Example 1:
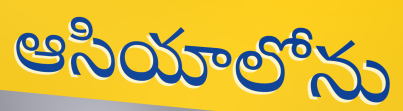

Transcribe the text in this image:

ఆసియాలోను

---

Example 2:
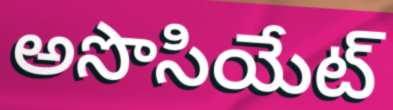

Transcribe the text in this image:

అసొసియేట్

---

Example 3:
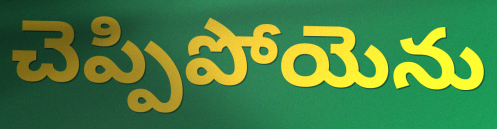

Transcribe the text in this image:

చెప్పిపోయెను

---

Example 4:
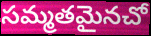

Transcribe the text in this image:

సమ్మతమైనచో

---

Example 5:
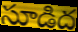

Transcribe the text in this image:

సూడిద